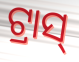
ଟ୍ରାସ୍